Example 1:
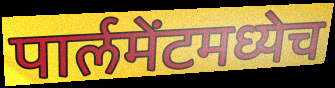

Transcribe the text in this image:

पार्लमेंटमध्येच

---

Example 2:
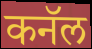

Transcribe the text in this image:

कनॅल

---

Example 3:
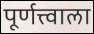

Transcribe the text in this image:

पूर्णत्त्वाला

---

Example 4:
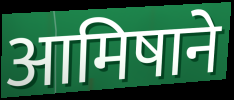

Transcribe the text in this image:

आमिषाने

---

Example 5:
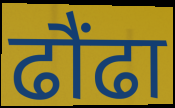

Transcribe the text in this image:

ढौंढा